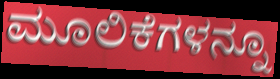
ಮೂಲಿಕೆಗಳನ್ನೂ